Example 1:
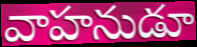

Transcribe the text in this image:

వాహనుడూ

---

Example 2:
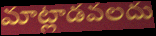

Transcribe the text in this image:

మాట్లాడవలదు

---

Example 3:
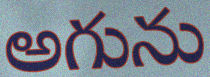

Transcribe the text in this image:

అగును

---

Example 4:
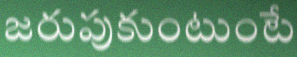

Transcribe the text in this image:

జరుపుకుంటుంటే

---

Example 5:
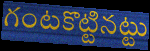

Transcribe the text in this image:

గంటకొట్టినట్టు